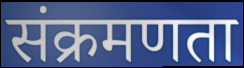
संक्रमणता